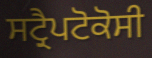
ਸਟ੍ਰੈਪਟੋਕੋਸੀ